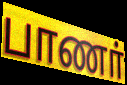
பாணர்